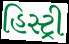
હિસ્ટ્રી